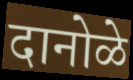
दानोळे